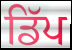
ਡਿੱਪ